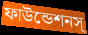
ফাউন্ডেশনস্